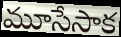
మూసేసాక